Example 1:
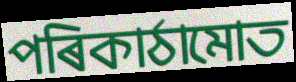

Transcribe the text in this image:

পৰিকাঠামোত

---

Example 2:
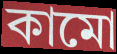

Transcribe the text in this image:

কামো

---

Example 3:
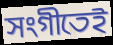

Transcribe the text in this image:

সংগীতেই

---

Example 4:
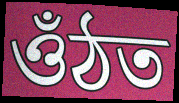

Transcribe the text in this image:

ওঁঠত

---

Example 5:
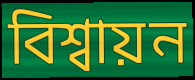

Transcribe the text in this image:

বিশ্বায়ন